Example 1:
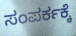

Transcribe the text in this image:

ಸಂಪರ್ಕಕ್ಕೆ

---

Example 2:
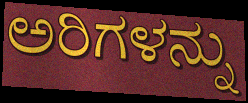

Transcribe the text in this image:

ಅರಿಗಳನ್ನು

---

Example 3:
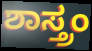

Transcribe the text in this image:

ಶಾಸ್ತ್ರಂ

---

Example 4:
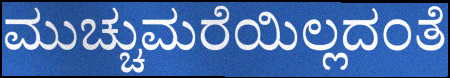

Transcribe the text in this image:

ಮುಚ್ಚುಮರೆಯಿಲ್ಲದಂತೆ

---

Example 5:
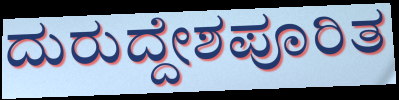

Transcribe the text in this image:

ದುರುದ್ದೇಶಪೂರಿತ